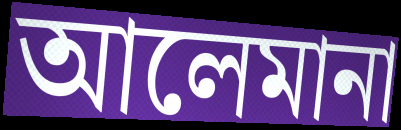
আলেমানা